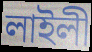
লাইলী